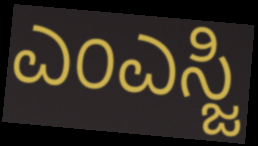
ಎಂಎಸ್ಜಿ